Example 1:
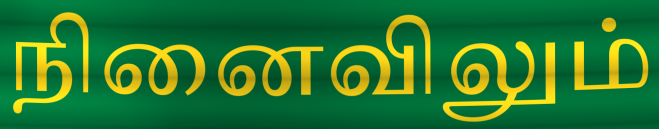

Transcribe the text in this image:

நினைவிலும்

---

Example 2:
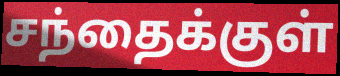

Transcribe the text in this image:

சந்தைக்குள்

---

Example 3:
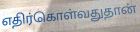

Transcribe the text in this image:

எதிர்கொள்வதுதான்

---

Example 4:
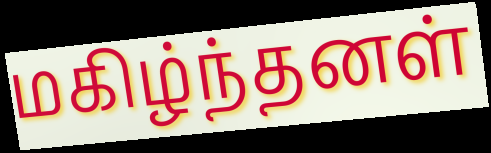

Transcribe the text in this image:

மகிழ்ந்தனள்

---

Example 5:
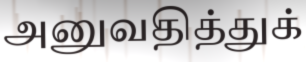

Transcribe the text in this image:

அனுவதித்துக்